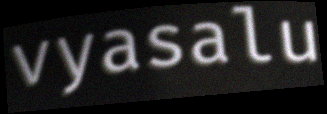
vyasalu